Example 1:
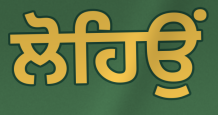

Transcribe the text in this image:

ਲੋਹਿਉਂ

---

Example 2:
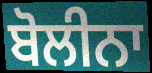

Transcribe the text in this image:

ਬੋਲੀਨਾ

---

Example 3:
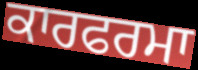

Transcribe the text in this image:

ਕਾਰਫਰਮਾ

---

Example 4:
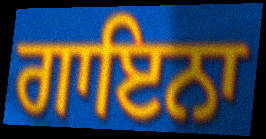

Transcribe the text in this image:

ਗਾਇਨਾ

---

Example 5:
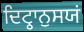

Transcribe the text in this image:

ਦਿਟ੍ਠਾਨੁਸਯਂ